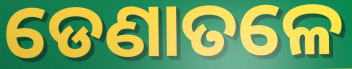
ଡେଣାତଳେ